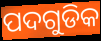
ପଦଗୁଡିକ